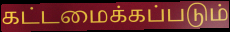
கட்டமைக்கப்படும்